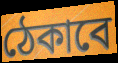
ঠেকাবে